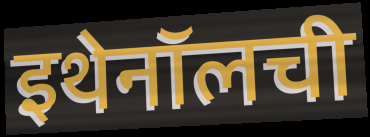
इथेनॉलची